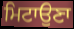
ਮਿਟਾਉਣਾ